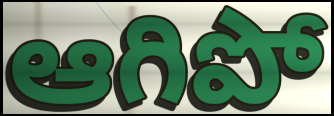
ఆగిపో